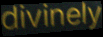
divinely